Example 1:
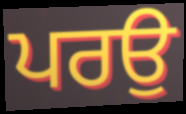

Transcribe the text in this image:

ਪਰਉ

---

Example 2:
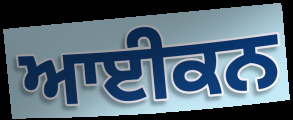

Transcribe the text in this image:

ਆਈਕਨ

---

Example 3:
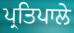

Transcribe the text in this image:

ਪ੍ਰਤਿਪਾਲੇ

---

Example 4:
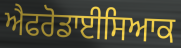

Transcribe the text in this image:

ਐਫਰੋਡਾਈਸਿਆਕ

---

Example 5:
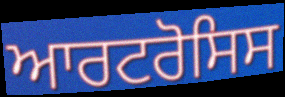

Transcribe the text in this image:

ਆਰਟਰੋਸਿਸ